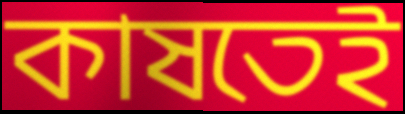
কাষতেই